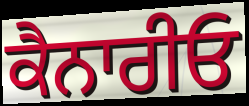
ਕੈਨਾਰੀਓ